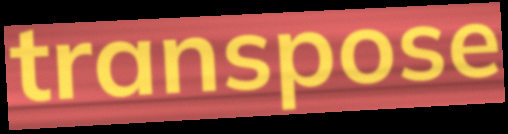
transpose